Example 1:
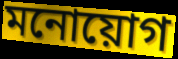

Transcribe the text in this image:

মনোয়োগ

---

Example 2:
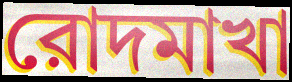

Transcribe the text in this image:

রোদমাখা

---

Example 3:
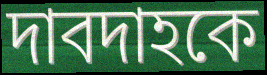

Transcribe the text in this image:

দাবদাহকে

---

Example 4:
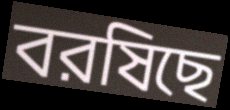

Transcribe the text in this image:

বরষিছে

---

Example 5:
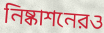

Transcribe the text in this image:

নিষ্কাশনেরও